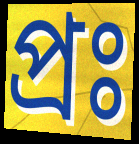
প্ৰঃ